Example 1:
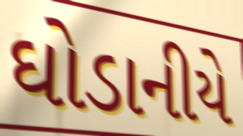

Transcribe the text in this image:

ઘોડાનીયે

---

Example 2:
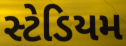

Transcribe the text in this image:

સ્ટેડિયમ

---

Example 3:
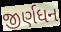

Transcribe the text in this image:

જીર્ણધન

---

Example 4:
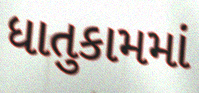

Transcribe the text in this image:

ધાતુકામમાં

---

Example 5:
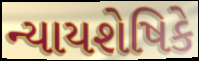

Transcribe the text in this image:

ન્યાયશેષિકે